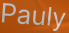
Pauly